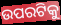
ଉପରଟିକୁ